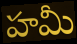
హమీ